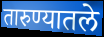
तारुण्यातले